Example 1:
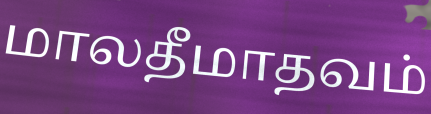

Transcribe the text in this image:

மாலதீமாதவம்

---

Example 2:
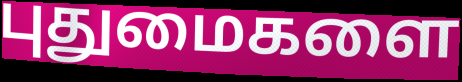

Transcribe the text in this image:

புதுமைகளை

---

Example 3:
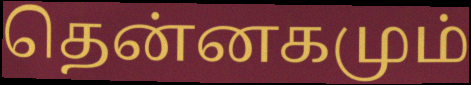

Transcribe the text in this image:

தென்னகமும்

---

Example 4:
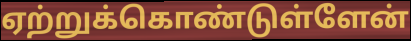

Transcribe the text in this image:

ஏற்றுக்கொண்டுள்ளேன்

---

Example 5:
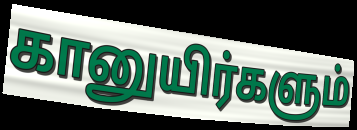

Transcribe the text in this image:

கானுயிர்களும்